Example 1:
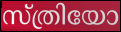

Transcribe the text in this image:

സ്ത്രിയോ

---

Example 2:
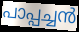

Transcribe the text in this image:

പാപ്പച്ചൻ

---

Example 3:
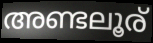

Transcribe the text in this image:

അണ്ടലൂര്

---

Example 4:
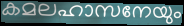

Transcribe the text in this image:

കമലഹാസനേയും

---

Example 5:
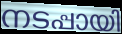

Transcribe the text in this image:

നടപ്പായി